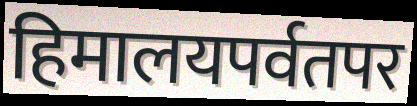
हिमालयपर्वतपर